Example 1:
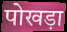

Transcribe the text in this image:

पोखड़ा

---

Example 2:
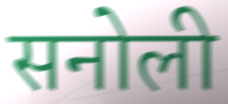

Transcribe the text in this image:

सनोली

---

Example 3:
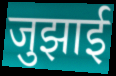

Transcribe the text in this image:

जुझाई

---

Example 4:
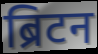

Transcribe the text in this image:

ब्रिटन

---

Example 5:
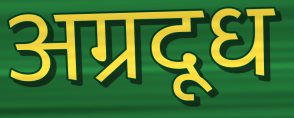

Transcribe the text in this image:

अग्रदूध